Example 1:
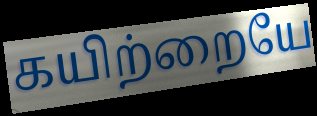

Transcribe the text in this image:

கயிற்றையே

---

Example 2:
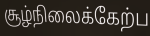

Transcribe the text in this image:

சூழ்நிலைக்கேற்ப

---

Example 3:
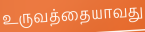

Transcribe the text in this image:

உருவத்தையாவது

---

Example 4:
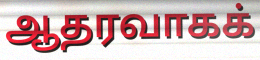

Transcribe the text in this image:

ஆதரவாகக்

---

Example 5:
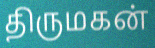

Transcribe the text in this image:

திருமகன்